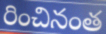
రించినంత